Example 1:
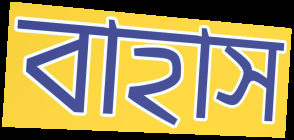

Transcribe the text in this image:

বাহাস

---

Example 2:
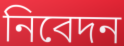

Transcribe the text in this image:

নিবেদন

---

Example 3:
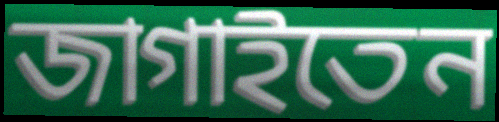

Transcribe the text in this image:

জাগাইতেন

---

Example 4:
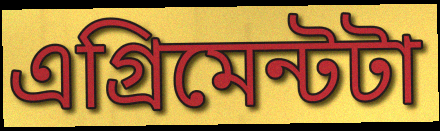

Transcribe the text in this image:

এগ্রিমেন্টটা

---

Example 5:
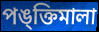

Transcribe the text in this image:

পঙ্ক্তিমালা